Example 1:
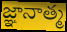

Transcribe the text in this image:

జ్ఞానాత్మ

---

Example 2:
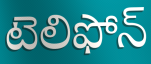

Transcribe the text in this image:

టెలిఫోన్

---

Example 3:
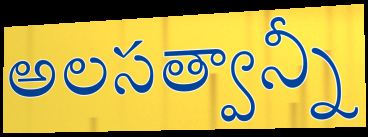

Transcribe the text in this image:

అలసత్వాన్నీ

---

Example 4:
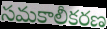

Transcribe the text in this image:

సమకాలీకరణ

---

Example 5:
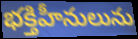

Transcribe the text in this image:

భక్తిహీనులును